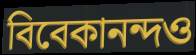
বিবেকানন্দও